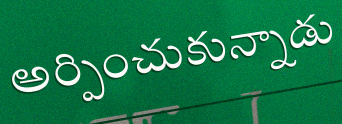
అర్పించుకున్నాడు